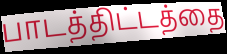
பாடத்திட்டத்தை